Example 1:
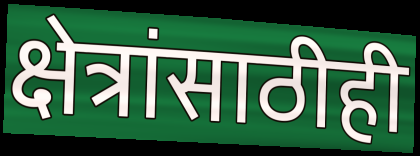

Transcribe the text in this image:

क्षेत्रांसाठीही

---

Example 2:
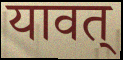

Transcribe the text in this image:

यावत्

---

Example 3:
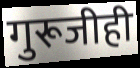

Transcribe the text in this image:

गुरूजीही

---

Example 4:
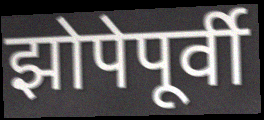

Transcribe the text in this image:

झोपेपूर्वी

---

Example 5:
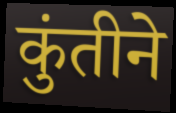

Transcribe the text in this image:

कुंतीने